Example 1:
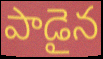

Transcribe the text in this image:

పాడైన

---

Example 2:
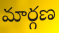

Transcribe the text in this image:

మార్గణ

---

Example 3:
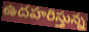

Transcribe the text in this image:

ఉదహరిస్తున్న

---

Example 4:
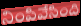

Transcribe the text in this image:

నింపివేసింది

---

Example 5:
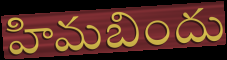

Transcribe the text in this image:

హిమబిందు